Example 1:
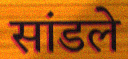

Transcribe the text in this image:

सांडले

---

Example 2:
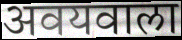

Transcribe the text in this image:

अवयवाला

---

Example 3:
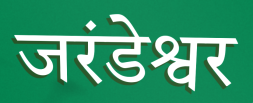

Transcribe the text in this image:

जरंडेश्वर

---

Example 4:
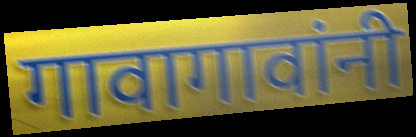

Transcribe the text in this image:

गावागावांनी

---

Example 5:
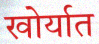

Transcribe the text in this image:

खोर्यात